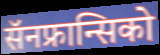
सॅनफ्रान्सिको